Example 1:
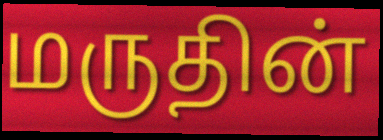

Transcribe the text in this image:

மருதின்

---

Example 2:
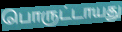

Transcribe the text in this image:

பொருட்டாயது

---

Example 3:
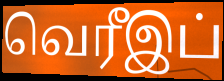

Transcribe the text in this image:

வெரீஇப்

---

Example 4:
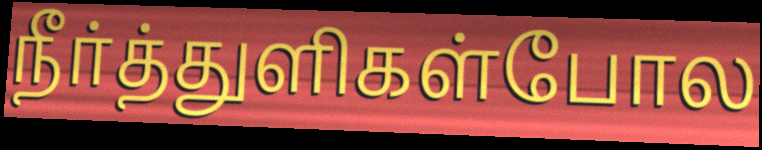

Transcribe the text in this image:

நீர்த்துளிகள்போல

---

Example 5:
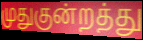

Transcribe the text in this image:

முதுகுன்றத்து